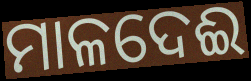
ମାଳଦେଈ